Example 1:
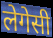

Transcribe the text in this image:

लेगेसी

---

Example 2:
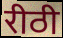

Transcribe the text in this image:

रीठी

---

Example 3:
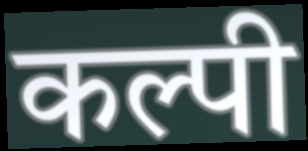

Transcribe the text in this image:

कल्पी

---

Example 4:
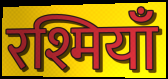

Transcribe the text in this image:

रश्मियाँ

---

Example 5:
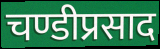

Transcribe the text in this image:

चण्डीप्रसाद